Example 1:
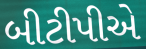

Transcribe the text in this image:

બીટીપીએ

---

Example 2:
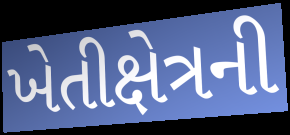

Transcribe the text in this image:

ખેતીક્ષેત્રની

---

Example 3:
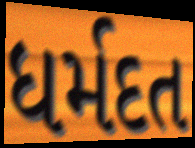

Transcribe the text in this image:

ધર્મદત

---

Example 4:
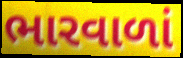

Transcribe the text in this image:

ભારવાળાં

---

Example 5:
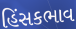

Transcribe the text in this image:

હિંસકભાવ